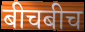
बीचबीच